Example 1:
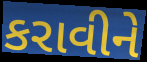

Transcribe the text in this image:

કરાવીને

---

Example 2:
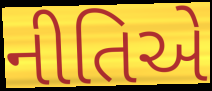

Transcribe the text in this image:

નીતિએ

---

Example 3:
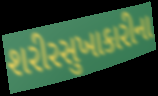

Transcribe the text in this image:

શરીરસુખાકારીના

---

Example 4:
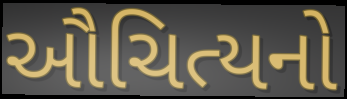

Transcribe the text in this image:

ઔચિત્યનો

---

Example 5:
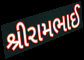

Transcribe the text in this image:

શ્રીરામભાઈ